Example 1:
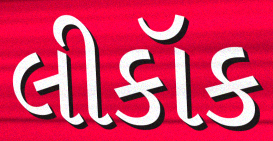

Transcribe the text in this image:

લીકૉક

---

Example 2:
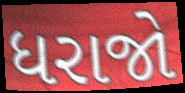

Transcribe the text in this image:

ધરાજો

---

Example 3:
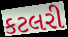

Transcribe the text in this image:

કટલરી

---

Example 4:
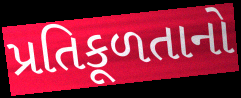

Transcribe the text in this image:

પ્રતિકૂળતાનો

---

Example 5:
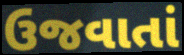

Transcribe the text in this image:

ઉજવાતાં